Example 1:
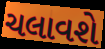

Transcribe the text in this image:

ચલાવશે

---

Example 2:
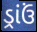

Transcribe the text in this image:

ડ્રાંઉં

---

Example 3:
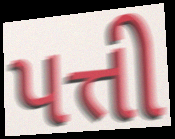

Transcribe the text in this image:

પત્તી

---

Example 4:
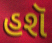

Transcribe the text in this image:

હશૅ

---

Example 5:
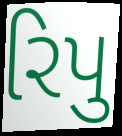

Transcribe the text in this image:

રિપુ